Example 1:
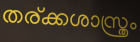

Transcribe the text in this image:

തര്ക്കശാസ്ത്രം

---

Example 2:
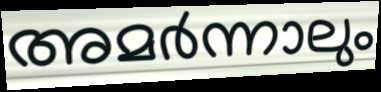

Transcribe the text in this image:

അമർന്നാലും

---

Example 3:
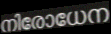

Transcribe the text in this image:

നിരോധേന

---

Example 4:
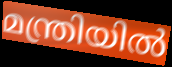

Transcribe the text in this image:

മന്ത്രിയിൽ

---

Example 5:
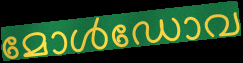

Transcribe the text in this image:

മോൾഡോവ